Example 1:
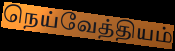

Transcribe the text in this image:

நெய்வேத்தியம்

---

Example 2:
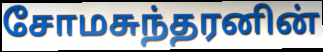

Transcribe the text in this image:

சோமசுந்தரனின்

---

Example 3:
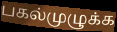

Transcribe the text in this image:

பகல்முழுக்க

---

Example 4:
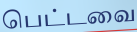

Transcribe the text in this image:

பெட்டவை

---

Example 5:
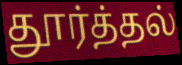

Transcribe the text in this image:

தூர்த்தல்